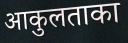
आकुलताका